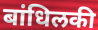
बांधिलकी